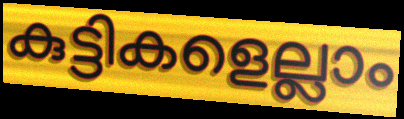
കുട്ടികളെല്ലാം